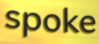
spoke